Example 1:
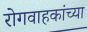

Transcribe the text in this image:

रोगवाहकांच्या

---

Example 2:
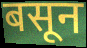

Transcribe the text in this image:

बसून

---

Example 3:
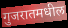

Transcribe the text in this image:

गुजरातमधील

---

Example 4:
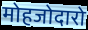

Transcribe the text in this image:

मोहजोदारो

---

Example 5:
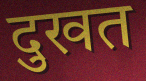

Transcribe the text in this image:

दुखत